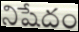
నిషేదం